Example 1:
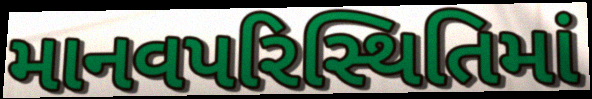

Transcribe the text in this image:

માનવપરિસ્થિતિમાં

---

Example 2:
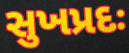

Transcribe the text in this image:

સુખપ્રદઃ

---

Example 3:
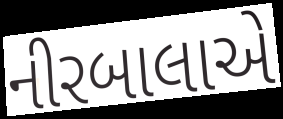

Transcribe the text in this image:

નીરબાલાએ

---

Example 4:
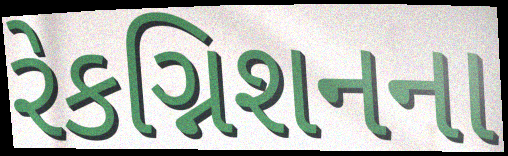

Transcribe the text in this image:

રેકગ્નિશનના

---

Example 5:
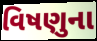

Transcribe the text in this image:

વિષણુના